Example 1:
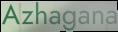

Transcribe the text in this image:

Azhagana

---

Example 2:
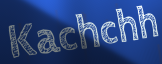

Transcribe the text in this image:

Kachchh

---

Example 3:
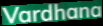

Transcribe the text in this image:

Vardhana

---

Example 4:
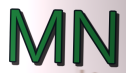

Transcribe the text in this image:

MN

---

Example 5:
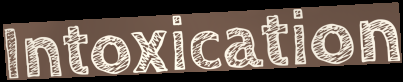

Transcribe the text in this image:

Intoxication